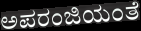
ಅಪರಂಜಿಯಂತೆ